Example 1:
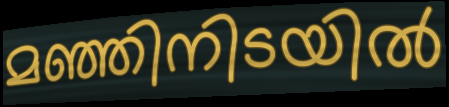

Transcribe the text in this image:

മഞ്ഞിനിടയിൽ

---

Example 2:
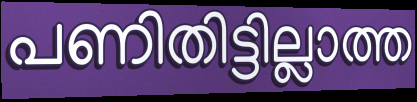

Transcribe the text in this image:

പണിതിട്ടില്ലാത്ത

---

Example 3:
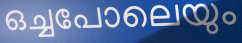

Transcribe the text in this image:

ഒച്ചപോലെയും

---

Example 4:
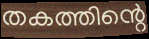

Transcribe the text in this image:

തകത്തിന്റെ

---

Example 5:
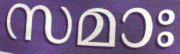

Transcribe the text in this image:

സമാഃ